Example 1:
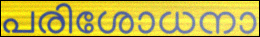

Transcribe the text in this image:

പരിശോധനാ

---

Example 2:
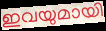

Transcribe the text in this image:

ഇവയുമായി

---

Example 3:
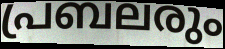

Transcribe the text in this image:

പ്രബലരും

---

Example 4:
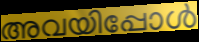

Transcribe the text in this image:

അവയിപ്പോൾ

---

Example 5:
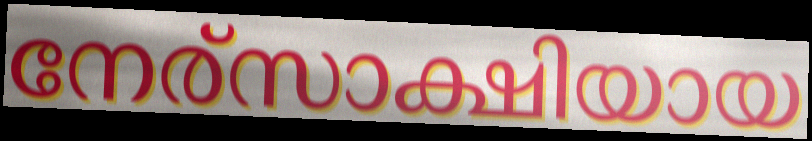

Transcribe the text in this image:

നേര്സാക്ഷിയായ